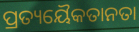
ପ୍ରତ୍ୟୟୈକତାନତା